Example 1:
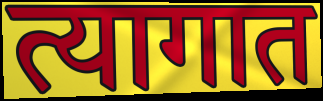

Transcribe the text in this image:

त्यागात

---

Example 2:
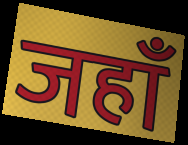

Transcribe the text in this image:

जहाँ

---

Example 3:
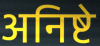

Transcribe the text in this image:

अनिष्टे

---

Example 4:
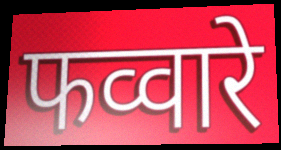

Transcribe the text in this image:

फव्वारे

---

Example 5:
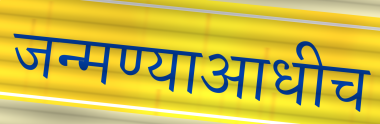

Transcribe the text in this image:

जन्मण्याआधीच